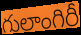
గులాంగిరీ